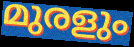
മുരളും